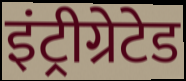
इंट्रीग्रेटेड